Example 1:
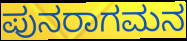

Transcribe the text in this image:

ಪುನರಾಗಮನ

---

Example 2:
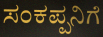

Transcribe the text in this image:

ಸಂಕಪ್ಪನಿಗೆ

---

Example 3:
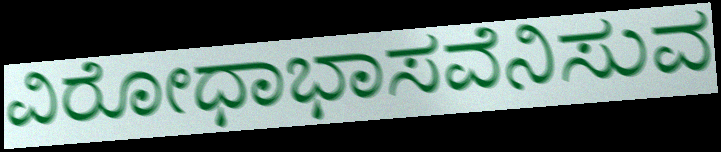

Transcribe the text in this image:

ವಿರೋಧಾಭಾಸವೆನಿಸುವ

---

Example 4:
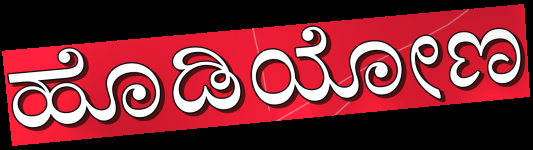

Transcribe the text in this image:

ಹೊಡಿಯೋಣ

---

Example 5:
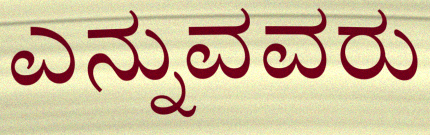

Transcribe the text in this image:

ಎನ್ನುವವರು